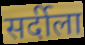
सर्दीला